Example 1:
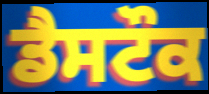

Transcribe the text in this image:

ਡੈਸਟੌਕ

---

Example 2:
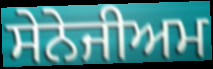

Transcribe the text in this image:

ਸੇਨੇਜੀਅਮ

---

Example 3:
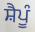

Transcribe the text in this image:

ਸ਼ੈਪੂੰ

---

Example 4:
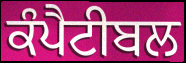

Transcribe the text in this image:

ਕੰਪੈਟੀਬਲ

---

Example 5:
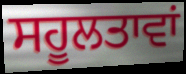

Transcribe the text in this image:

ਸਹੂਲਤਾਵਾਂ